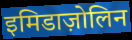
इमिडाज़ोलिन